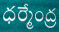
ధర్మేంద్ర